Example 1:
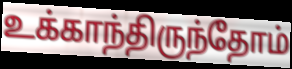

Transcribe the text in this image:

உக்காந்திருந்தோம்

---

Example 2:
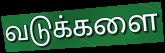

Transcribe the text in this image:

வடுக்களை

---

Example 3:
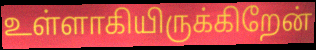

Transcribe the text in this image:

உள்ளாகியிருக்கிறேன்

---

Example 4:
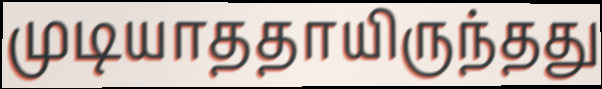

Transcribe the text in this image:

முடியாததாயிருந்தது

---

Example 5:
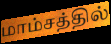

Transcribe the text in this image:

மாம்சத்தில்